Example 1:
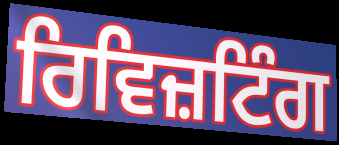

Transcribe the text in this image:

ਰਿਵਿਜ਼ਟਿੰਗ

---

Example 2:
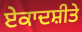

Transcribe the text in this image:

ਏਕਾਦਸ਼ੀਤੇ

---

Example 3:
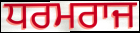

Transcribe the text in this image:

ਧਰਮਰਾਜ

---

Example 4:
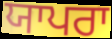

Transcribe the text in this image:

ਯਾਪਰਾ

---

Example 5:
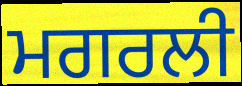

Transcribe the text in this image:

ਮਗਰਲੀ